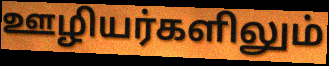
ஊழியர்களிலும்